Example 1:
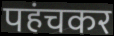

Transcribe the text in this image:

पहंचकर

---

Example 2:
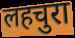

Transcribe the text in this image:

लहचुरा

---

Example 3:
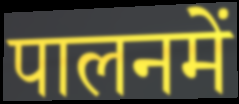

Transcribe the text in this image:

पालनमें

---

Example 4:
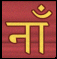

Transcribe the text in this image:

नाँ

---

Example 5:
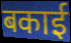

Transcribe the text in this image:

बकाई